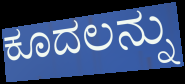
ಕೂದಲನ್ನು